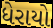
ધેરાયો